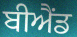
ਬੀਐਂਡ